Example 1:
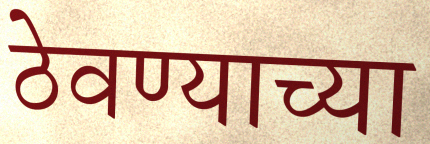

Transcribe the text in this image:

ठेवण्याच्या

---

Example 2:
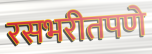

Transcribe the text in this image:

रसभरीतपणे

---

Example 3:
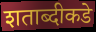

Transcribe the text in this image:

शताब्दीकडे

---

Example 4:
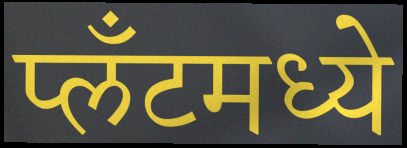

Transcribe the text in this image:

प्लँटमध्ये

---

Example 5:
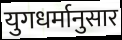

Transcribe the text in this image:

युगधर्मानुसार